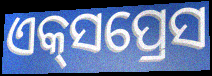
ଏକ୍‍ସପ୍ରେସ